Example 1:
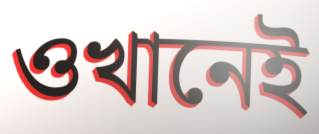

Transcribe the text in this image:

ওখানেই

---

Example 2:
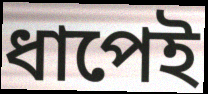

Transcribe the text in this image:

ধাপেই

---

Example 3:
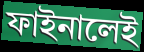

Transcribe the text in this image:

ফাইনালেই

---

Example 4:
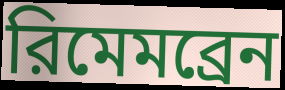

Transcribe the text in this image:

রিমেমব্রেন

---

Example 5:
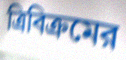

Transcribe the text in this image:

ত্রিবিক্রমের